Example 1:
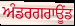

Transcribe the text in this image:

ਅੰਡਰਗਰਾਊਂਡ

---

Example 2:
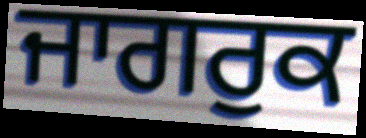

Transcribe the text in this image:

ਜਾਗਰੁਕ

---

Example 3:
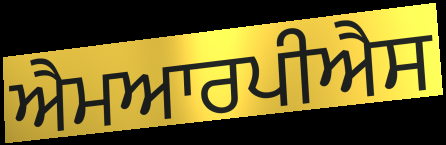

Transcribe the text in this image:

ਐਮਆਰਪੀਐਸ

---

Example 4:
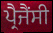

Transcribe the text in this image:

ਪ੍ਰੈਜੈਂਸੀ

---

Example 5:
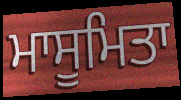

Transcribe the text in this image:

ਮਾਸੂਮਿਤਾ